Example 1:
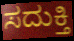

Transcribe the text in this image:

ಸದುಕ್ತಿ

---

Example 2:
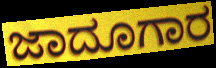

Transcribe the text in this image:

ಜಾದೂಗಾರ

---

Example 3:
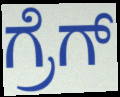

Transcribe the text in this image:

ಗ್ರೆಗ್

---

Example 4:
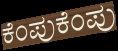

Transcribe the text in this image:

ಕೆಂಪುಕೆಂಪು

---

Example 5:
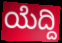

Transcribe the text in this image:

ಯೆದ್ದಿ